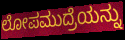
ಲೋಪಮುದ್ರೆಯನ್ನು